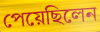
পেয়েছিলেন